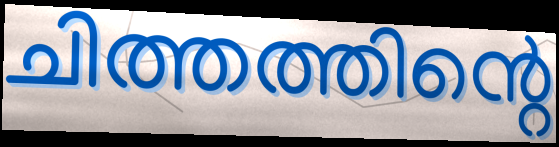
ചിത്തത്തിന്റെ